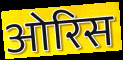
ओरिस